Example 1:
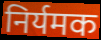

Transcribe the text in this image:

निर्यमक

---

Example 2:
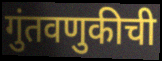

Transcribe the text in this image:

गुंतवणुकीची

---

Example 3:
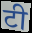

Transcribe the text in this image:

टी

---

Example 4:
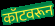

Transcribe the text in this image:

कॉटवरून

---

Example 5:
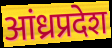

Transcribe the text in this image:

आंध्रप्रदेश